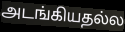
அடங்கியதல்ல